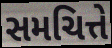
સમચિત્તે